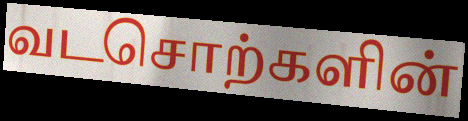
வடசொற்களின்